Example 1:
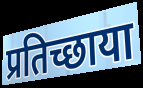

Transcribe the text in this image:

प्रतिच्छाया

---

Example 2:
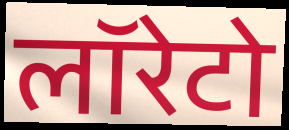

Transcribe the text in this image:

लॉरेटो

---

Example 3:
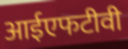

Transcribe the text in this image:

आईएफटीवी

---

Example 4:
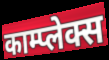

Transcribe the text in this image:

काम्प्लेक्स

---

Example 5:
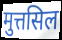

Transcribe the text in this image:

मुत्तसिल